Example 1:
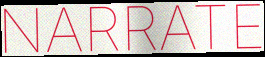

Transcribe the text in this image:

NARRATE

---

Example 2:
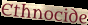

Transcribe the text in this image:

Ethnocide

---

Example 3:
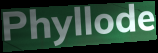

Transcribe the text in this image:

Phyllode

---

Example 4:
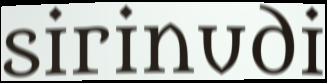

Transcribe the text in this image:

sirinudi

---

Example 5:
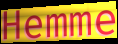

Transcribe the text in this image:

Hemme